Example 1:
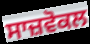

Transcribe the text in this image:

ਸਾਜ਼ਵੋਕਲ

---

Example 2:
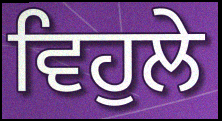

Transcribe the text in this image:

ਵਿਹੁਲੇ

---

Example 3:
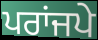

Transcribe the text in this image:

ਪਰਾਂਜਪੇ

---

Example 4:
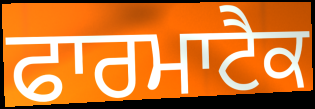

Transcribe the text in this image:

ਫਾਰਮਾਟੈਕ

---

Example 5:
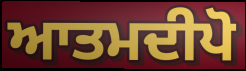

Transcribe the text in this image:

ਆਤਮਦੀਪੋ